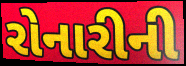
રોનારીની